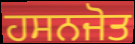
ਹਸਨਜੋਤ